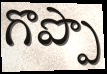
గొప్పొ